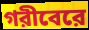
গরীবেরে